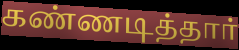
கண்ணடித்தார்